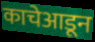
काचेआडून